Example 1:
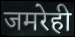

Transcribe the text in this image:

जमरेही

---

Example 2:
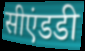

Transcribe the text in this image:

सीएंडडी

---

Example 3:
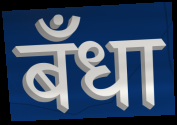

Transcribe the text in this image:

बँधा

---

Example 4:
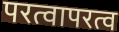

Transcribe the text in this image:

परत्वापरत्व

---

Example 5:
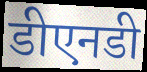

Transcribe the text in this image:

डीएनडी